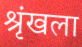
श्रृंखला